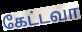
கேட்டவா